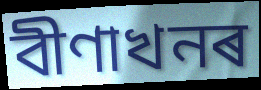
বীণাখনৰ